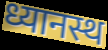
ध्यानस्थ